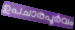
ഉപചാരപൂർവം